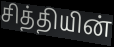
சித்தியின்